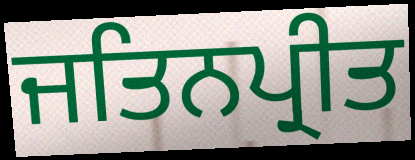
ਜਤਿਨਪ੍ਰੀਤ